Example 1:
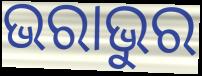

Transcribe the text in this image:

ଭରାଭୁର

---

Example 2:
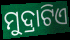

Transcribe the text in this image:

ମୁଦ୍ରାଟିଏ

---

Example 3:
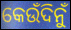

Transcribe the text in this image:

କେଉଁଦିନୁଁ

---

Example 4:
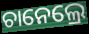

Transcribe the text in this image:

ଚାନେଲ୍ରେ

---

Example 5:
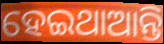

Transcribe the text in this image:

ହେଇଥାଆନ୍ତି